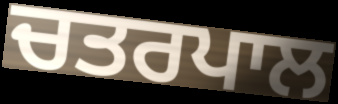
ਚਤਰਪਾਲ